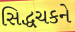
સિદ્ધચકને